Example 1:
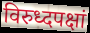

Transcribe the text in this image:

विरुध्दपक्षां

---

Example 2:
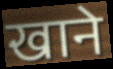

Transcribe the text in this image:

खाने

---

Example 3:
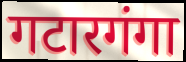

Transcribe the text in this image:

गटारगंगा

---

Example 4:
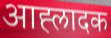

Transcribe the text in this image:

आह्लादक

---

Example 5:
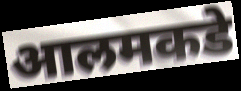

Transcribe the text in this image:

आलमकडे